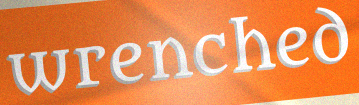
wrenched